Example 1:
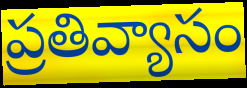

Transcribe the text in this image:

ప్రతివ్యాసం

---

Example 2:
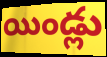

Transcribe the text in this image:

యిండ్లు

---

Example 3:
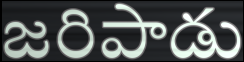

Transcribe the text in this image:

జరిపాడు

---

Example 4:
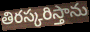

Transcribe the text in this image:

తిరస్కరిస్తాను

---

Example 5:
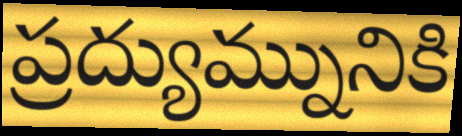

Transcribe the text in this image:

ప్రద్యుమ్నునికి